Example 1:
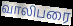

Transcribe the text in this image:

வாலிபரை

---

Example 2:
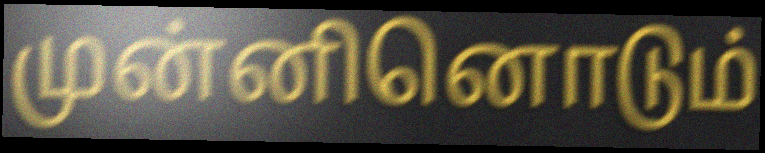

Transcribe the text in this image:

முன்னினொடும்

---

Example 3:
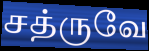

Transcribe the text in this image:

சத்ருவே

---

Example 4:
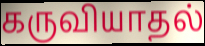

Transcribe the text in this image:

கருவியாதல்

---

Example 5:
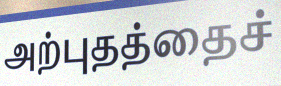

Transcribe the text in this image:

அற்புதத்தைச்